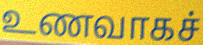
உணவாகச்